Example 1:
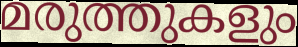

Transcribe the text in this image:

മരുത്തുകളും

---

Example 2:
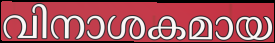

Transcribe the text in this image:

വിനാശകമായ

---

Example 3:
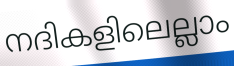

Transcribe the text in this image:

നദികളിലെല്ലാം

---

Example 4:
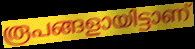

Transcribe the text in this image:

രൂപങ്ങളായിട്ടാണ്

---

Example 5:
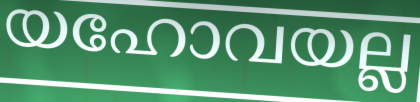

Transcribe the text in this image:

യഹോവയല്ല